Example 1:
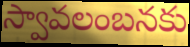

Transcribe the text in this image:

స్వావలంబనకు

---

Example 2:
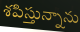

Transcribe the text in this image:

శపిస్తున్నాను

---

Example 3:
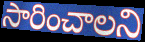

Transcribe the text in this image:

సారించాలని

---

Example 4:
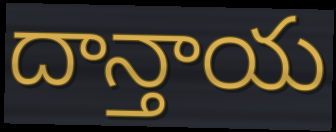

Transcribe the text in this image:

దాన్తాయ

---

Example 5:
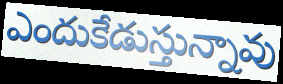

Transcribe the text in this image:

ఎందుకేడుస్తున్నావు